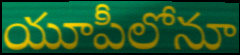
యూపీలోనూ